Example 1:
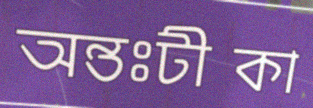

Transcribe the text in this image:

অন্তঃটীকা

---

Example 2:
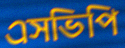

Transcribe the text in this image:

এসভিপি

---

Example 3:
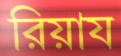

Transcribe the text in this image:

রিয়ায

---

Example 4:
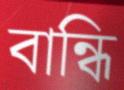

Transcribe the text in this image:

বান্ধি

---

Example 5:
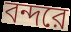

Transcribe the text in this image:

বন্দরে